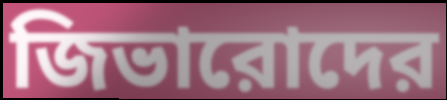
জিভারোদের